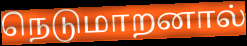
நெடுமாறனால்